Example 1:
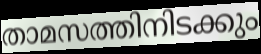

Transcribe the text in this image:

താമസത്തിനിടക്കും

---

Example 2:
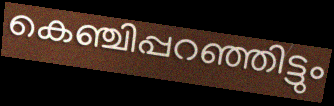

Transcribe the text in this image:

കെഞ്ചിപ്പറഞ്ഞിട്ടും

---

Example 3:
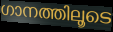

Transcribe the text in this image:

ഗാനത്തിലൂടെ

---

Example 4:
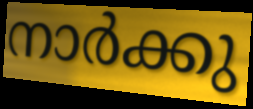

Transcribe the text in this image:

നാർക്കു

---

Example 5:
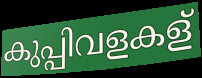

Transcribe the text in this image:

കുപ്പിവളകള്